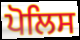
ਪੋਲਿਸ